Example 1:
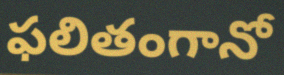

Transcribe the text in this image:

ఫలితంగానో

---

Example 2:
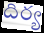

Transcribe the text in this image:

దిర్య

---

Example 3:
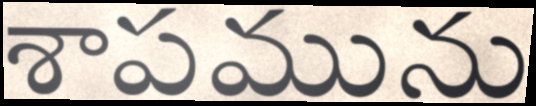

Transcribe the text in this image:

శాపమును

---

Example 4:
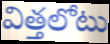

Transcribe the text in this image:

విత్తలోటు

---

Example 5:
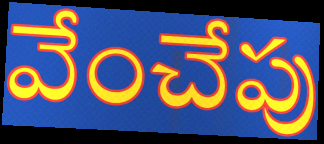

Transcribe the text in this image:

వేంచేపు